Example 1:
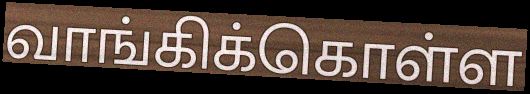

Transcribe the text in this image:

வாங்கிக்கொள்ள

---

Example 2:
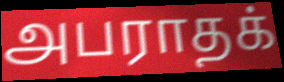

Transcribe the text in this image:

அபராதக்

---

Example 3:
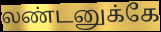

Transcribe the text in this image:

லண்டனுக்கே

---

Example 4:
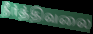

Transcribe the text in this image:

நீர்த்திவலை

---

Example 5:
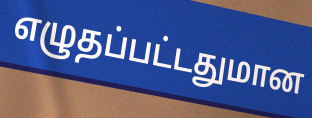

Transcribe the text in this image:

எழுதப்பட்டதுமான